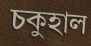
চকুহাল